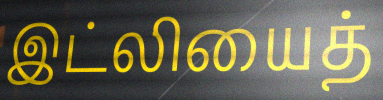
இட்லியைத்